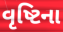
વૃષ્ટિના